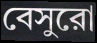
বেসুরো